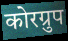
कोरग्रुप